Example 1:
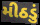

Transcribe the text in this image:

મીઠડું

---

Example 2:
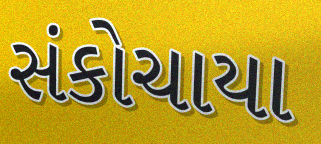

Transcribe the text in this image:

સંકોચાયા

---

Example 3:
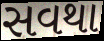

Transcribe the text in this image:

સવથા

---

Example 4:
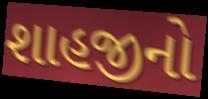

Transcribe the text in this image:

શાહજીનો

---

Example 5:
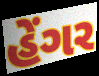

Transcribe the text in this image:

હેંગર